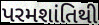
પરમશાંતિથી